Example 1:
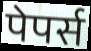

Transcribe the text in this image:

पेपर्स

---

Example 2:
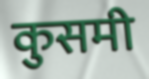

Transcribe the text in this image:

कुसमी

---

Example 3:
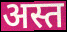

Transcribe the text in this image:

अस्त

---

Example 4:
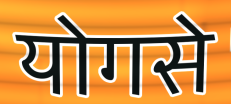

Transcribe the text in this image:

योगसे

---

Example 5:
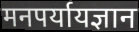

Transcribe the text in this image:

मनपर्यायज्ञान